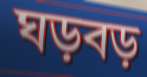
ঘড়বড়